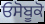
ਓਸੋਬੂਕੋ